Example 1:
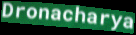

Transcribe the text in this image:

Dronacharya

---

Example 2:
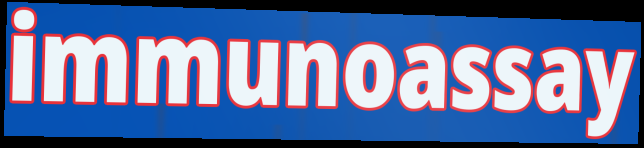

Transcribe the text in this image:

immunoassay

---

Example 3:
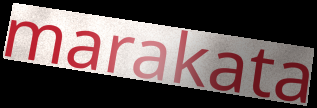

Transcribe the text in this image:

marakata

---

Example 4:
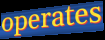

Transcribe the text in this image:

operates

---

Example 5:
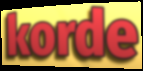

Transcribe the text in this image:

korde